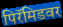
पिरॅमिडवर